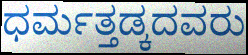
ಧರ್ಮತ್ತಡ್ಕದವರು